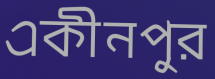
একীনপুর